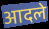
आदले